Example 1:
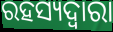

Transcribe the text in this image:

ରହସ୍ୟଦ୍ଵାରା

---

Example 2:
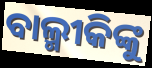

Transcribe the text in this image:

ବାଲ୍ମୀକିଙ୍କୁ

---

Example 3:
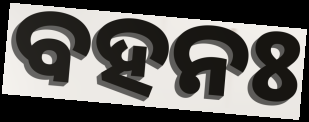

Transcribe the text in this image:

ବହନଃ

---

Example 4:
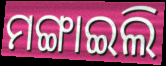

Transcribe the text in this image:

ମଙ୍ଗାଇଲି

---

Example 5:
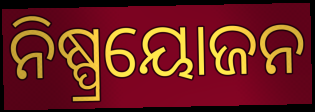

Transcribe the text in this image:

ନିଷ୍ପ୍ରୟୋଜନ